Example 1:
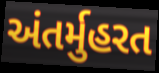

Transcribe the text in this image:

અંતર્મુહરત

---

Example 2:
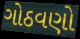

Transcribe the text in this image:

ગોઠવણો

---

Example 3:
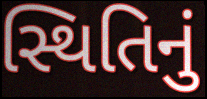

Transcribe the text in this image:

સ્થિતિનું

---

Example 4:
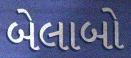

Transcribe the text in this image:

બેલાબો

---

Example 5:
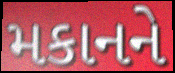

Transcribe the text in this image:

મકાનને